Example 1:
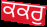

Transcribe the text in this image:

ਕਕਰੁ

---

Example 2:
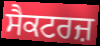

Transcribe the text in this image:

ਸੈਕਟਰਜ਼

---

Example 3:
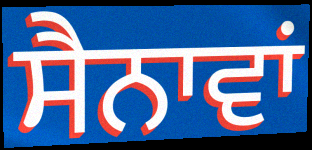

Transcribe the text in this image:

ਸੈਨਾਵਾਂ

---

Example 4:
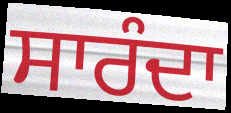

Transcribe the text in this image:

ਸਾਰੰਦਾ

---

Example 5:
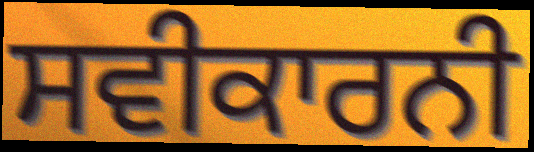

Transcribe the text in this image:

ਸਵੀਕਾਰਨੀ